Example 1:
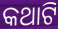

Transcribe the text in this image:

କଥାଟି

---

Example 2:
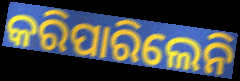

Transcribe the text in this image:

କରିପାରିଲେନି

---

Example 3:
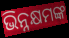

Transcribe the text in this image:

ଭିନ୍ନକ୍ଷମଙ୍କ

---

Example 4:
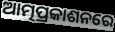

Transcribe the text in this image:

ଆତ୍ମପ୍ରକାଶନରେ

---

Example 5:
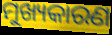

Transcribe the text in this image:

ମୁଖ୍ୟକାରଣ